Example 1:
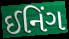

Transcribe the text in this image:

ઈનિંગ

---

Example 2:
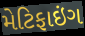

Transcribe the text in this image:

મેટિફાઇંગ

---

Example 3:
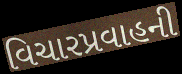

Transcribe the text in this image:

વિચારપ્રવાહની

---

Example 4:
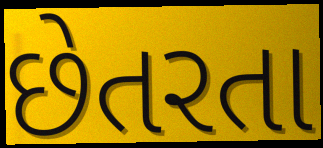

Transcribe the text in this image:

છેતરતા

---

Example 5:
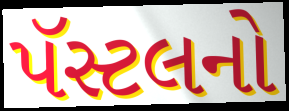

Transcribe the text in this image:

પૅસ્ટલનો